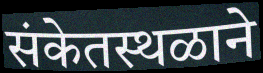
संकेतस्थळाने